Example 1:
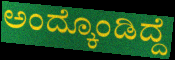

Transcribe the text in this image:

ಅಂದ್ಕೊಂಡಿದ್ದೆ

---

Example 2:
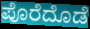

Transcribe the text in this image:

ಪೊರೆದೊಡೆ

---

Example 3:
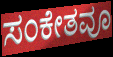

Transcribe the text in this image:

ಸಂಕೇತವೂ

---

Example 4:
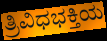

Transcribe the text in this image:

ತ್ರಿವಿಧಭಕ್ತಿಯ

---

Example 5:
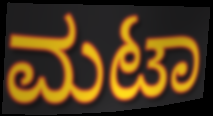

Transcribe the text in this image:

ಮಟಾ